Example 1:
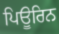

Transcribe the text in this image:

ਪਿਊਰਿਨ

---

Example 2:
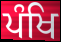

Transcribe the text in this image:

ਪੰਖਿ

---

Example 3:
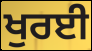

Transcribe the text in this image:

ਖੁਰਈ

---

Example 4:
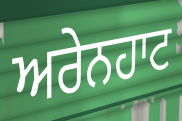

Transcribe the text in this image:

ਅਰੇਨਹਾਟ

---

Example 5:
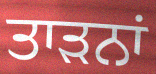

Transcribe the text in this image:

ਤਾੜਨਾਂ